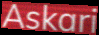
Askari